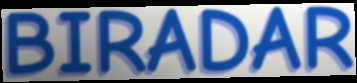
BIRADAR